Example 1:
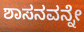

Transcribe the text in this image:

ಶಾಸನವನ್ನೇ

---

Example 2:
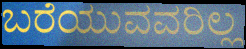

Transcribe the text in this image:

ಬರೆಯುವವರಿಲ್ಲ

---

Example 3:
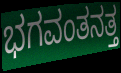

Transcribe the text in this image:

ಭಗವಂತನತ್ತ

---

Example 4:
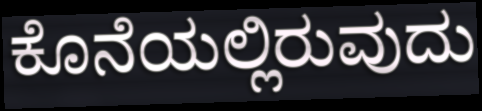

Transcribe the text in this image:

ಕೊನೆಯಲ್ಲಿರುವುದು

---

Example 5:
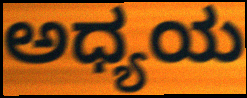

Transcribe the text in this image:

ಅಧ್ಯಯ